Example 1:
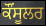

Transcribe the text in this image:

ਕੌਂਸੂਲਰ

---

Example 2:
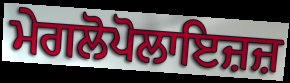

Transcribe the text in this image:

ਮੇਗਲੋਪੋਲਾਇਜ਼ਜ਼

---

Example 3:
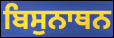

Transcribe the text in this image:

ਬਿਸੁਨਾਥਨ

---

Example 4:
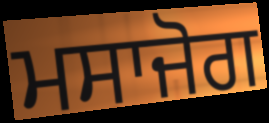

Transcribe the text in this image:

ਮਸਾਜੋਗ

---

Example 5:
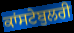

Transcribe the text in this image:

ਕਾਂਸਟੇਬੁਲਰੀ